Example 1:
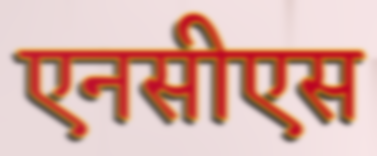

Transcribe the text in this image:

एनसीएस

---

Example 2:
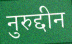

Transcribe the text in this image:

नुरुद्दीन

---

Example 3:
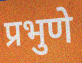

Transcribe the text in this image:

प्रभुणे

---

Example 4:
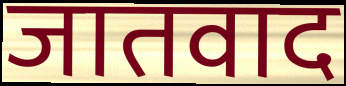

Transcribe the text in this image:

जातवाद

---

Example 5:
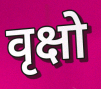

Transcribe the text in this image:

वृक्षो